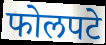
फोलपटे